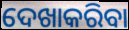
ଦେଖାକରିବା